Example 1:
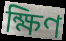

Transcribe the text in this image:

ক্ষিণ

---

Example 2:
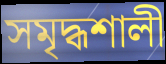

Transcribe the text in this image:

সমৃদ্ধশালী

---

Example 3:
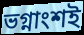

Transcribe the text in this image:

ভগ্নাংশই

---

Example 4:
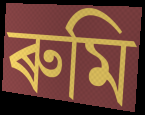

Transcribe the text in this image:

ৰুমি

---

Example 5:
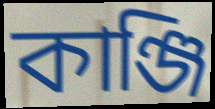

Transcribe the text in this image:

কাঞ্জি